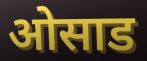
ओसाड